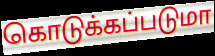
கொடுக்கப்படுமா